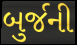
બુર્જની